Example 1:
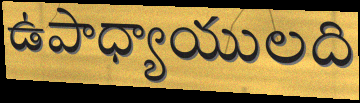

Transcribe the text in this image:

ఉపాధ్యాయులది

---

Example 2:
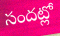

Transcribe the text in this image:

సందట్లో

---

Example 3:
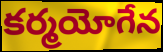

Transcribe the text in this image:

కర్మయోగేన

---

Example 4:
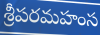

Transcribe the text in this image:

శ్రీపరమహంస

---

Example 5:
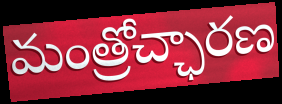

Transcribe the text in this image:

మంత్రోచ్ఛారణ